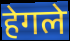
हेगले